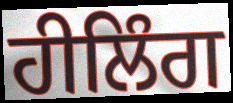
ਹੀਲਿੰਗ